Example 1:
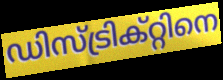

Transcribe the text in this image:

ഡിസ്ട്രിക്റ്റിനെ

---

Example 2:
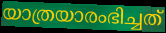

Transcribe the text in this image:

യാത്രയാരംഭിച്ചത്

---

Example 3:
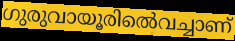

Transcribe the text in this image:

ഗുരുവായൂരിൽെവച്ചാണ്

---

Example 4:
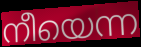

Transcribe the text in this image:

നീയെന്ന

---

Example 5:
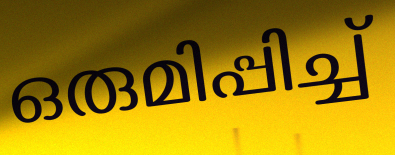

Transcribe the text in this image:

ഒരുമിപ്പിച്ച്